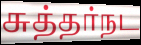
சுத்தர்நட